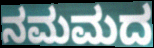
ನಮಮದ